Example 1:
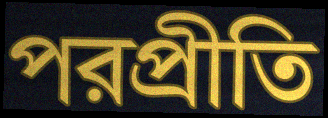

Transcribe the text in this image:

পরপ্রীতি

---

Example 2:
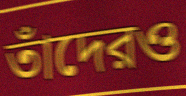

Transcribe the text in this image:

তাঁদেরও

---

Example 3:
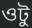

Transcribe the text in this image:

ওটু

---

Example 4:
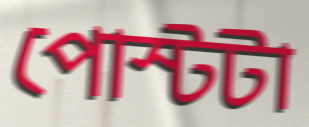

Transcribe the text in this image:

পোস্টটা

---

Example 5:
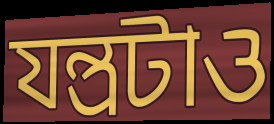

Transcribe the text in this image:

যন্ত্রটাও